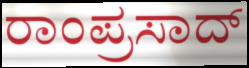
ರಾಂಪ್ರಸಾದ್